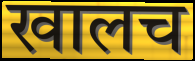
खालच